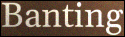
Banting